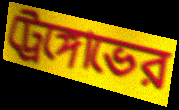
ট্রেঙ্গোভের